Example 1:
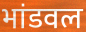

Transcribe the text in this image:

भांडवल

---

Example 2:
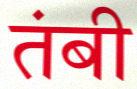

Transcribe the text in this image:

तंबी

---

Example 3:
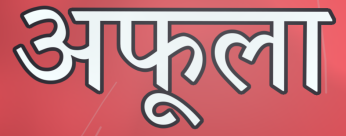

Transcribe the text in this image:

अफूला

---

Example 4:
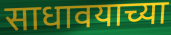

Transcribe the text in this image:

साधावयाच्या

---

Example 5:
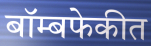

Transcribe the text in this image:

बॉम्बफेकीत